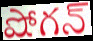
షోగన్